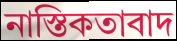
নাস্তিকতাবাদ